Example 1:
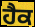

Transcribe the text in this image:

ਹੈਕ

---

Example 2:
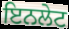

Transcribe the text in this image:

ਇਨਲੇਟ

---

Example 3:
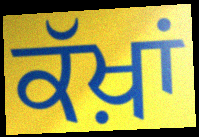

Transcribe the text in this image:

ਕੱਖ਼ਾਂ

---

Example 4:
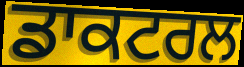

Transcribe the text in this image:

ਡਾਕਟਰਲ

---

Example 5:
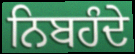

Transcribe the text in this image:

ਨਿਬਹੰਦੇ